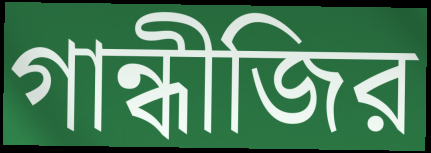
গান্ধীজির